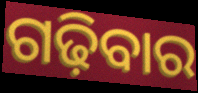
ଗଢ଼ିବାର